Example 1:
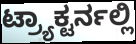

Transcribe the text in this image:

ಟ್ರ್ಯಾಕ್ಟರ್ನಲ್ಲಿ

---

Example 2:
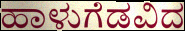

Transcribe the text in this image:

ಹಾಳುಗೆಡವಿದ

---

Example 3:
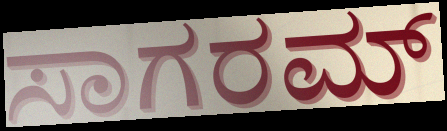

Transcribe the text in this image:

ಸಾಗರಮ್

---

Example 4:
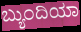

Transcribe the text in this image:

ಬ್ಯುಂದಿಯಾ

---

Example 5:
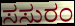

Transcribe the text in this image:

ಸಸುರಂ